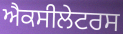
ਐਕਸੀਲੇਟਰਸ